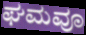
ಘಮವೂ